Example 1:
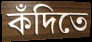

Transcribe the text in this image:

কঁদিতে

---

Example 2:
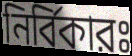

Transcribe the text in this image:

নির্বিকারঃ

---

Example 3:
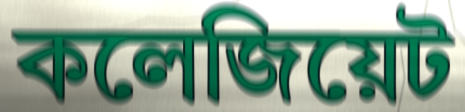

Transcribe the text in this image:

কলেজিয়েট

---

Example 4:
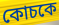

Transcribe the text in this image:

কোচকে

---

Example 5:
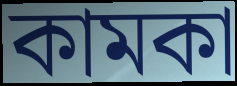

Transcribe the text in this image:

কামকা